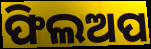
ଫିଲଅପ